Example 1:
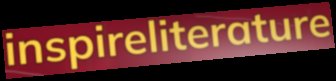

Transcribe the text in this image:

inspireliterature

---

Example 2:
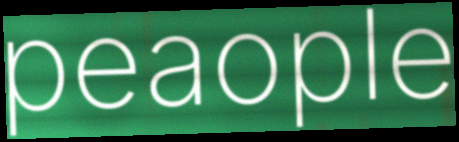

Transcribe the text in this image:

peaople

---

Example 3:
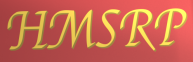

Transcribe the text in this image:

HMSRP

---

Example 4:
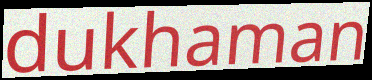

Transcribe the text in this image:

dukhaman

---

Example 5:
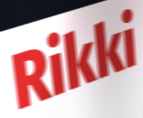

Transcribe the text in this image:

Rikki